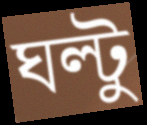
ঘল্টু